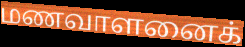
மணவாளனைக்